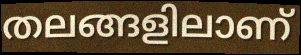
തലങ്ങളിലാണ്